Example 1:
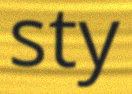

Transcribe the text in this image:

sty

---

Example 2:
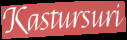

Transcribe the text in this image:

Kastursuri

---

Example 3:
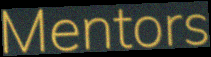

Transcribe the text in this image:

Mentors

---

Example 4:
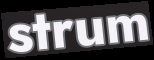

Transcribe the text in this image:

strum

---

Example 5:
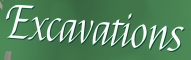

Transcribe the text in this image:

Excavations